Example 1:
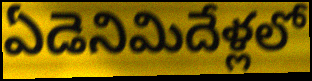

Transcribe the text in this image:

ఏడెనిమిదేళ్లలో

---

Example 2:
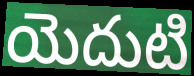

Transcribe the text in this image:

యెదుటి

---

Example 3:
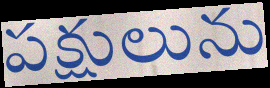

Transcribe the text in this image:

పక్షులును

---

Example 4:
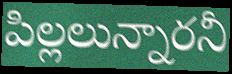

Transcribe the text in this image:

పిల్లలున్నారనీ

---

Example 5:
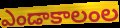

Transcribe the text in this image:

ఎండాకాలంల